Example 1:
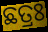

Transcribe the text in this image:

ଛତ୍ରଃ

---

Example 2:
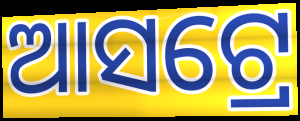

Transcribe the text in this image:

ଆସଟ୍ରେ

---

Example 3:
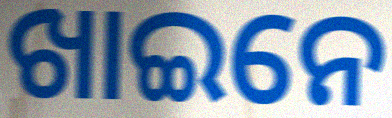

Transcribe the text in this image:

ଖାଇନେ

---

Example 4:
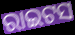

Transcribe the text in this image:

ରାଇଟସ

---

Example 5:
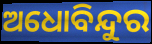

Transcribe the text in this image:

ଅଧୋବିନ୍ଦୁର